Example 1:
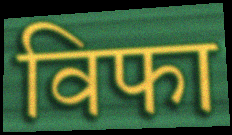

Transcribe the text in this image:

विफा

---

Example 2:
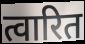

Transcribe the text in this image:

त्वारित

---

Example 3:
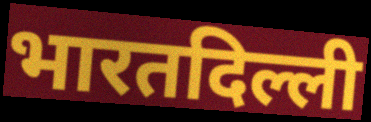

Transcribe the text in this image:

भारतदिल्ली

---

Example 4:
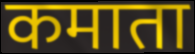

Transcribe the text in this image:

कमाता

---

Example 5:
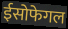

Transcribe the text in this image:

ईसोफेगल